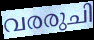
വരരുചി